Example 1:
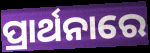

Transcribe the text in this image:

ପ୍ରାର୍ଥନାରେ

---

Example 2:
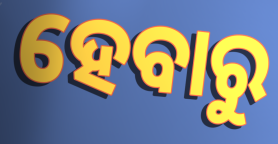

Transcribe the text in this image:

ହେବାରୁ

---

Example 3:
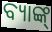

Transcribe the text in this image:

ବ୍ୟାଙ୍କ୍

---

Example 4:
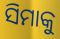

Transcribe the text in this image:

ସିମାକୁ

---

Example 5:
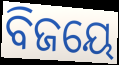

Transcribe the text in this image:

ବିଜୟେ